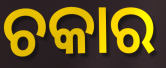
ଚକାର